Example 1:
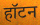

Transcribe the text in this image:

हॉटन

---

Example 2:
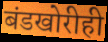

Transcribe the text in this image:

बंडखोरीही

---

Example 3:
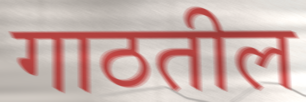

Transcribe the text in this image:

गाठतील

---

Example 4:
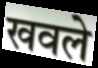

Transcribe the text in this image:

खवले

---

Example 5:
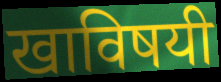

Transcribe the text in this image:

खाविषयी